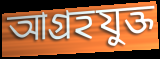
আগ্রহযুক্ত